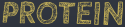
PROTEIN